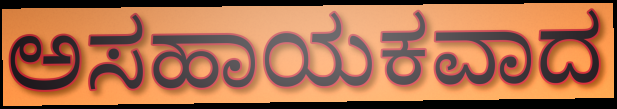
ಅಸಹಾಯಕವಾದ